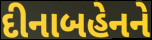
દીનાબહેનને